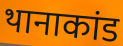
थानाकांड